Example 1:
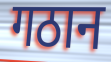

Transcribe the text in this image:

गठान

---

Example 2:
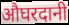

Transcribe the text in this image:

औघरदानी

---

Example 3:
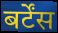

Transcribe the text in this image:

बर्टेंस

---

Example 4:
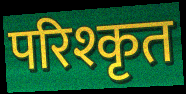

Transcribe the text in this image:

परिश्कृत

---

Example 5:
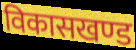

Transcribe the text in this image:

विकासखण्‍ड